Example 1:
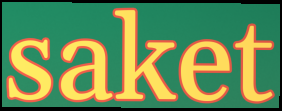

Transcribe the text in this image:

saket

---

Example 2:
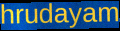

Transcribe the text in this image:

hrudayam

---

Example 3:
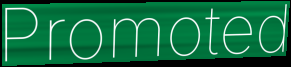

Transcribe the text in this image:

Promoted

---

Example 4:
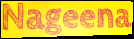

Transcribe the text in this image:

Nageena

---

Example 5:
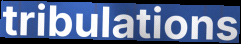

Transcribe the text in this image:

tribulations